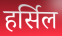
हर्सिल